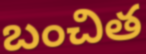
బంచిత